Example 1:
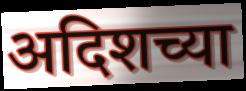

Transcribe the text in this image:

अदिशच्या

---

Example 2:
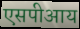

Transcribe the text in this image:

एसपीआय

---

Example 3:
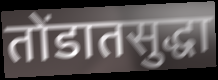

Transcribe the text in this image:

तोंडातसुद्धा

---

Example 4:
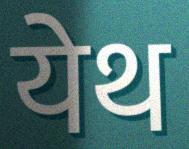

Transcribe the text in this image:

येथ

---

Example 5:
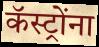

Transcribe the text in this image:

कॅस्ट्रोंना